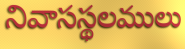
నివాసస్థలములు